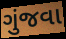
ગુંજવા